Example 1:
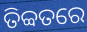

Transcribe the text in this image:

ତିବ୍ବତରେ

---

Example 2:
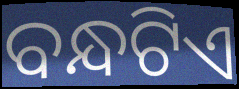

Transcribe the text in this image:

ବନ୍ଧଟିଏ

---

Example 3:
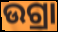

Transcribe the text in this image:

ଉଗ୍ରା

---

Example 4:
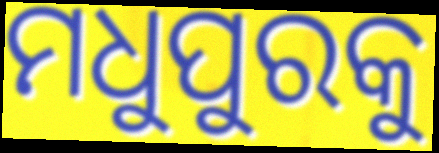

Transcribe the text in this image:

ମଧୁପୁରକୁ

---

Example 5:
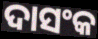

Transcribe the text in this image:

ଦାସଂକ